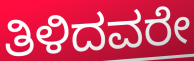
ತಿಳಿದವರೇ